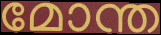
മോന്ത